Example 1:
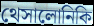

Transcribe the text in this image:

থেসালোনিকি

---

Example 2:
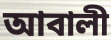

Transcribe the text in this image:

আবালী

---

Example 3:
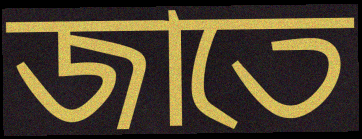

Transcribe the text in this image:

জাতে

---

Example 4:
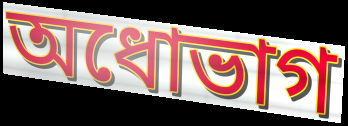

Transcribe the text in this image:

অধোভাগ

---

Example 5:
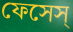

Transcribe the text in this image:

ফেসেস্